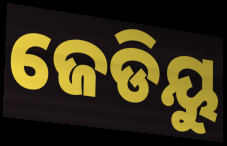
ଜେଡିୟୁ